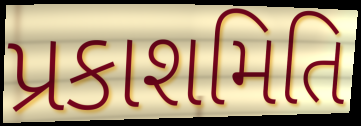
પ્રકાશમિતિ